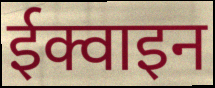
ईक्वाइन